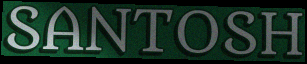
SANTOSH